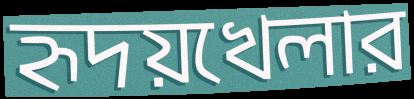
হৃদয়খেলার